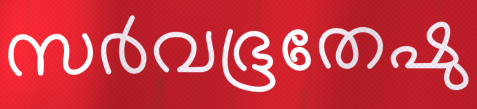
സർവഭൂതേഷു